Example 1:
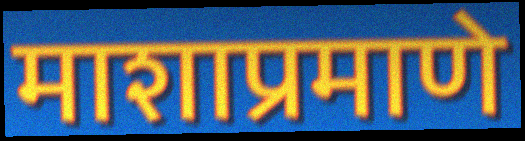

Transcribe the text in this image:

माशाप्रमाणे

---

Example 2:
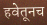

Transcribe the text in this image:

हवेतूनच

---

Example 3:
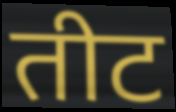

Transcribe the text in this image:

तीट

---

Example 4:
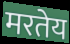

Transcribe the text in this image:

मरतेय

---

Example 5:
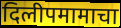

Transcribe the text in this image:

दिलीपमामाचा